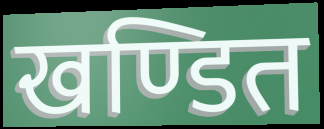
खण्डित